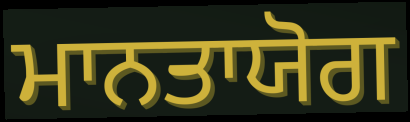
ਮਾਨਤਾਯੋਗ